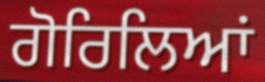
ਗੋਰਿਲਿਆਂ